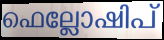
ഫെല്ലോഷിപ്